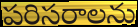
పరిసరాలను